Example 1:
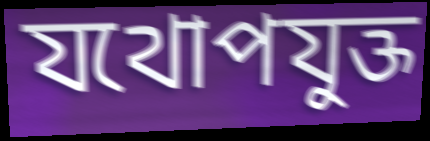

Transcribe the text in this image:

যথোপযুক্ত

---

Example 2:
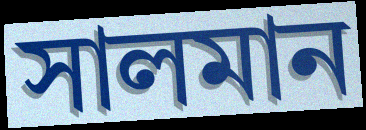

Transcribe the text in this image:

সালমান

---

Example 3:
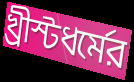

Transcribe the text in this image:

খ্রীস্টধর্মের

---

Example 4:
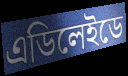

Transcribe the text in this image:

এডিলেইডে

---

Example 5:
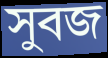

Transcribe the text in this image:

সুবজ